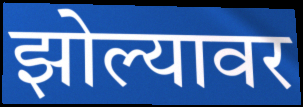
झोल्यावर